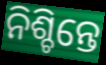
ନିଶ୍ଚିନ୍ତେ